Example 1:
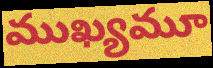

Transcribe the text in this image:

ముఖ్యమూ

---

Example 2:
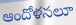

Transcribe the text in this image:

ఆందోళనలూ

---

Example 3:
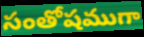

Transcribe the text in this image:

సంతోషముగా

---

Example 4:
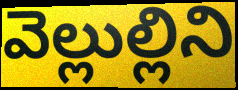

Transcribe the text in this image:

వెల్లుల్లిని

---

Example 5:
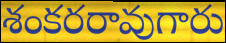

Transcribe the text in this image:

శంకరరావుగారు